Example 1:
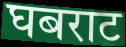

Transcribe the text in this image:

घबराट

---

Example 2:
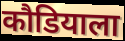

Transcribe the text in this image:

कौडियाला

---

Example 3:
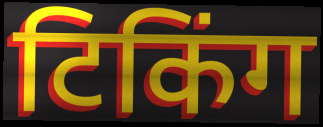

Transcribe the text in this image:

टिकिंग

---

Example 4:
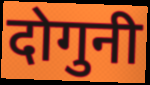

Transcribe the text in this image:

दोगुनी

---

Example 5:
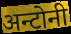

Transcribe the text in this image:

अन्टोनी